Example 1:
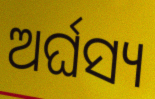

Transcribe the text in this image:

ଅର୍ଘସ୍ୟ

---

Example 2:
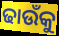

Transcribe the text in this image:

ଢାଉଁକୁ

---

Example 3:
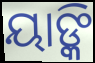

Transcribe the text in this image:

ୟାଙ୍କି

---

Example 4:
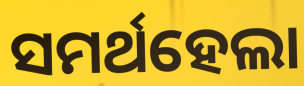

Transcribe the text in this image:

ସମର୍ଥହେଲା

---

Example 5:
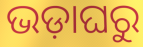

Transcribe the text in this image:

ଭଡ଼ାଘରୁ